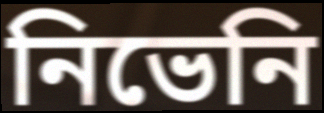
নিভেনি